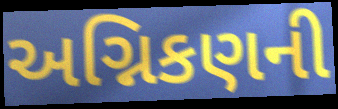
અગ્નિકણની